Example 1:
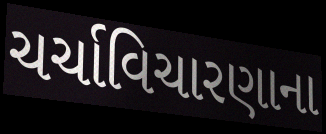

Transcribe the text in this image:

ચર્ચાવિચારણાના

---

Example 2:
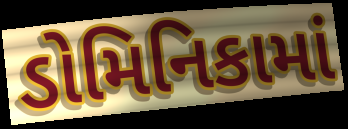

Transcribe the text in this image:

ડોમિનિકામાં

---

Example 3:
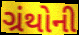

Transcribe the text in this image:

ગ્રંથોની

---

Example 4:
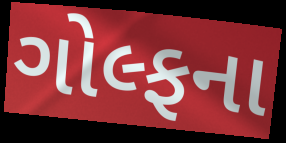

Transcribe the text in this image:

ગોલ્ફના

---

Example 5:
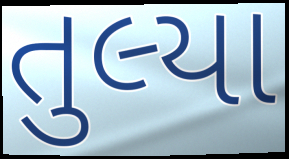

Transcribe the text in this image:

તુલ્યા